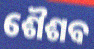
ଶୈଶବ